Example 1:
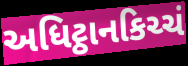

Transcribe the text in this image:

અધિટ્ઠાનકિચ્ચં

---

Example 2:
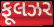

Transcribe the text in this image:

ફૂલઝર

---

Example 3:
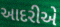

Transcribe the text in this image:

આદરીએ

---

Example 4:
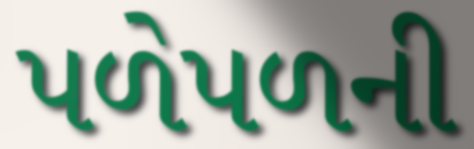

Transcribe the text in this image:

પળેપળની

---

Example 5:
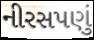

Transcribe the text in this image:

નીરસપણું